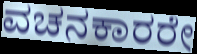
ವಚನಕಾರರೇ